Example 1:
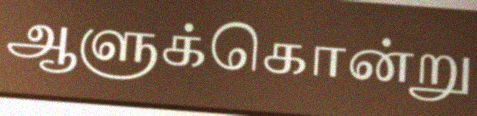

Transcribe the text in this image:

ஆளுக்கொன்று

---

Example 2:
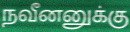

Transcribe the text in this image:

நவீனனுக்கு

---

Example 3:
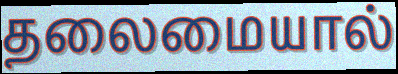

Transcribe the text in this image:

தலைமையால்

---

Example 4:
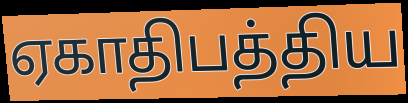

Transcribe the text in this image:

ஏகாதிபத்திய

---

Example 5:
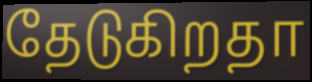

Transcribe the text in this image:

தேடுகிறதா